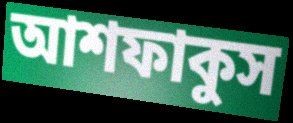
আশফাকুস